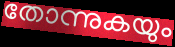
തോന്നുകയും